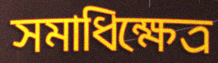
সমাধিক্ষেত্ৰ